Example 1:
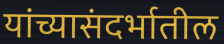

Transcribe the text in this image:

यांच्यासंदर्भातील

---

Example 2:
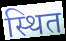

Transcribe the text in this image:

स्थित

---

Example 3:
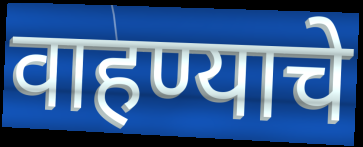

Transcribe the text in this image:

वाहण्याचे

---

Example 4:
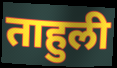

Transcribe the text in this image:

ताहुली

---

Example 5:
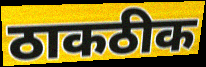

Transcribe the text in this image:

ठाकठीक